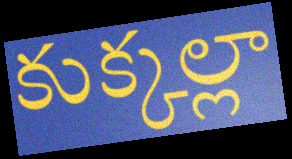
కుక్కల్లా